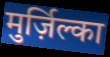
मुर्ज़िल्का